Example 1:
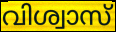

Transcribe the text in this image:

വിശ്വാസ്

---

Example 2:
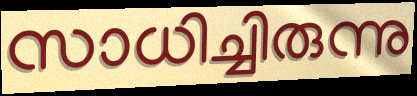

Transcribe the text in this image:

സാധിച്ചിരുന്നു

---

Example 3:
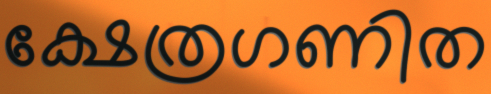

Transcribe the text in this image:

ക്ഷേത്രഗണിത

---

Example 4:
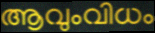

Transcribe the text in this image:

ആവുംവിധം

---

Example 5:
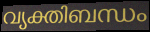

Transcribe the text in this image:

വ്യക്തിബന്ധം